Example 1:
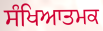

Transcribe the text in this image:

ਸੰਖਿਆਤਮਕ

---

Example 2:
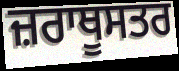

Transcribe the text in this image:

ਜ਼ਰਾਥੂਸਤਰ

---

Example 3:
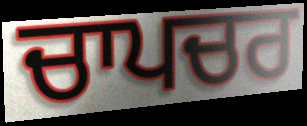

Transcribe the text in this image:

ਚਾਪਚਰ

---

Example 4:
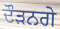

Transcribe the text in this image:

ਦੌੜਨਗੇ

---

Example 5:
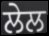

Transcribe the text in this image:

ਲੇਲ